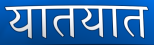
यातयात